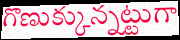
గొణుక్కున్నట్టుగా